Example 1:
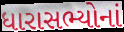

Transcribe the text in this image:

ધારાસભ્યોનાં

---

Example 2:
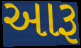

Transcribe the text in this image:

આરૂ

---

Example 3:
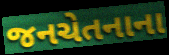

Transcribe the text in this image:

જનચેતનાના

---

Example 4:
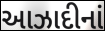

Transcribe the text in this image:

આઝાદીનાં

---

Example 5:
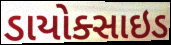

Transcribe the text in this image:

ડાયોક્સાઇડ